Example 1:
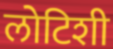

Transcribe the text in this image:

लोटिशी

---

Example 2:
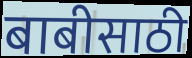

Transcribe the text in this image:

बाबीसाठी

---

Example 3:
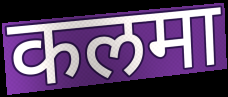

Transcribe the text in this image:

कलमा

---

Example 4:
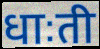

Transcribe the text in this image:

धाःती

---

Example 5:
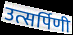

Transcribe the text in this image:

उत्सर्पिणी